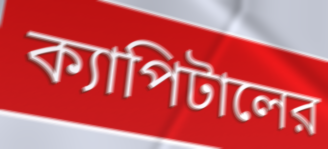
ক্যাপিটালের